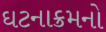
ઘટનાક્રમનો